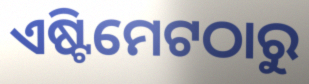
ଏଷ୍ଟିମେଟଠାରୁ